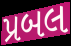
પ્રબલ